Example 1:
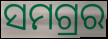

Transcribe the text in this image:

ସମଗ୍ରର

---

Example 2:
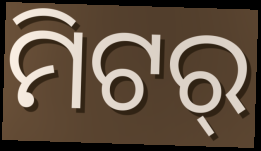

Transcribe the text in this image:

ମିଟର୍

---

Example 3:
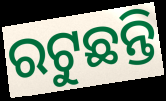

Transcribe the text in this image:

ରଟୁଛନ୍ତି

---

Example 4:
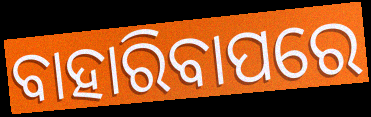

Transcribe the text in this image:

ବାହାରିବାପରେ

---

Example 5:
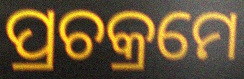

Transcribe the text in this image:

ପ୍ରଚକ୍ରମେ